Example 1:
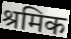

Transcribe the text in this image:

श्रमिक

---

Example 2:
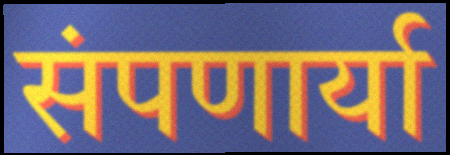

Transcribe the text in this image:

संपणार्या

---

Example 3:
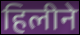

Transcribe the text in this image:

हिलीने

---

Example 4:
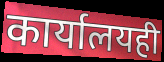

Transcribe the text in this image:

कार्यालयही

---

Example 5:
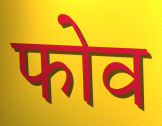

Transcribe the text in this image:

फोव